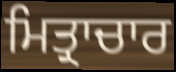
ਮਿਤ੍ਰਾਚਾਰ